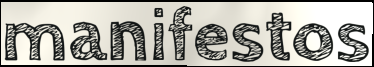
manifestos